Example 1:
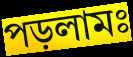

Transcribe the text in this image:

পড়লামঃ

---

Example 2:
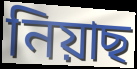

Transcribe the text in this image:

নিয়াছ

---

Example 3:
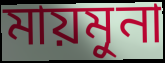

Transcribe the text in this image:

মায়মুনা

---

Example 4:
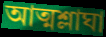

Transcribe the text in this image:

আত্মশ্লাঘা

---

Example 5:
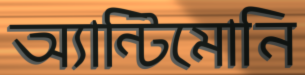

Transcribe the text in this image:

অ্যান্টিমোনি